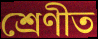
শ্ৰেণীত